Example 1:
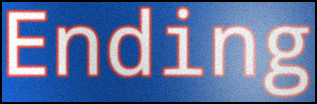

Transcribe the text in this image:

Ending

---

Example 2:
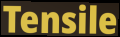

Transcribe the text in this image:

Tensile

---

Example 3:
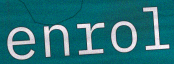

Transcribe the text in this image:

enrol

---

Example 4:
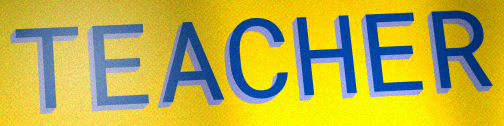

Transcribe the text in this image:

TEACHER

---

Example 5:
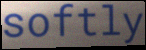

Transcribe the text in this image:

softly